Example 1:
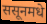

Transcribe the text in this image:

ससूनमधे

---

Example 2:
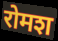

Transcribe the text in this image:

रोमश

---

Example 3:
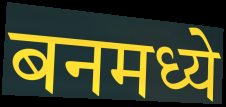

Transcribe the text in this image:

बनमध्ये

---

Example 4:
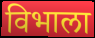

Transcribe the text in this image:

विभाला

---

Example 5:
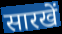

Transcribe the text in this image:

सारखें